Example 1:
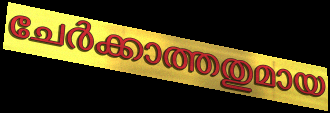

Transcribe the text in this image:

ചേർക്കാത്തതുമായ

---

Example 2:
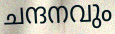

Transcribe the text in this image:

ചന്ദനവും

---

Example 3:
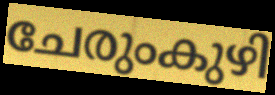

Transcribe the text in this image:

ചേരുംകുഴി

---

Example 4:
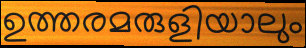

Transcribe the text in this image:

ഉത്തരമരുളിയാലും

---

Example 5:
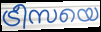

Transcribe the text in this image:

ട്രീസയെ